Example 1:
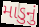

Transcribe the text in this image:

માડુનું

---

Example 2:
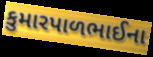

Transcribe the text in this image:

કુમારપાળભાઈના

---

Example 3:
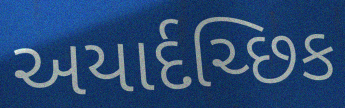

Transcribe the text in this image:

અયાર્દચ્છિક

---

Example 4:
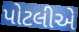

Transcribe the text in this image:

પોટલીએ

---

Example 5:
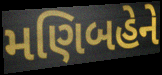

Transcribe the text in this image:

મણિબહેને